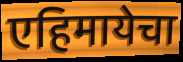
एहिमायेचा